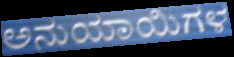
ಅನುಯಾಯಿಗಳ